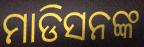
ମାଡିସନଙ୍କ